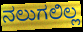
ನಲುಗಲಿಲ್ಲ